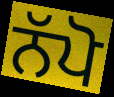
ਨੱਪੋ